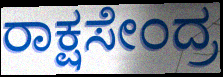
ರಾಕ್ಷಸೇಂದ್ರ